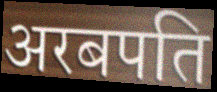
अरबपति